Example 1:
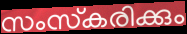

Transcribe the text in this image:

സംസ്‌കരിക്കും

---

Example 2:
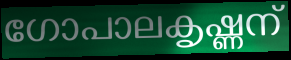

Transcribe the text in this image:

ഗോപാലകൃഷ്ണന്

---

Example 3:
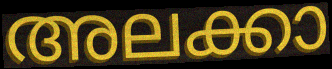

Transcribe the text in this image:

അലക്കാ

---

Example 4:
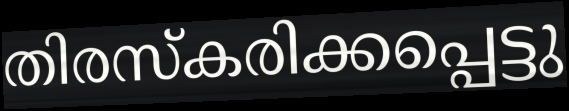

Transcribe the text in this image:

തിരസ്കരിക്കപ്പെട്ടു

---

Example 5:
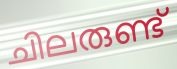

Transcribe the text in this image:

ചിലരുണ്ട്